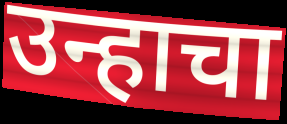
उन्हाचा